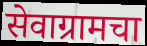
सेवाग्रामचा